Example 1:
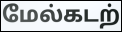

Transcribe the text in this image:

மேல்கடற்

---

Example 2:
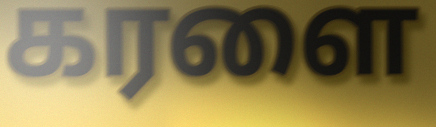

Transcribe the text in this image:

கரளை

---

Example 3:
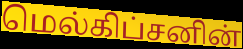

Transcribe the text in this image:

மெல்கிப்சனின்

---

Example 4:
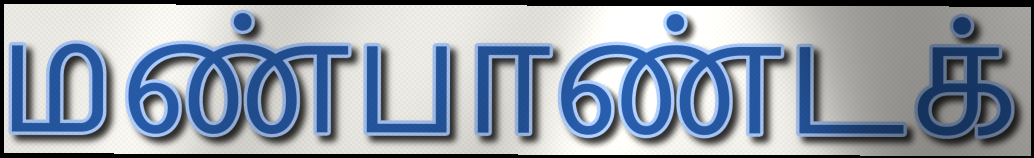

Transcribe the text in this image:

மண்பாண்டக்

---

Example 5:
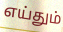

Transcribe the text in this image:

எய்தும்